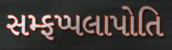
સમ્ફપ્પલાપોતિ